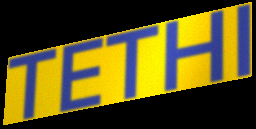
TETHI